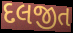
દલજીત